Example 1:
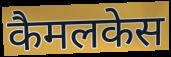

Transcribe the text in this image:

कैमलकेस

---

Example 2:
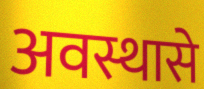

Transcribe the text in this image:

अवस्थासे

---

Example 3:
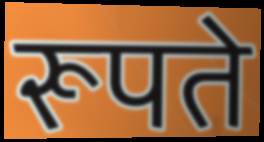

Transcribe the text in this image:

रूपते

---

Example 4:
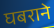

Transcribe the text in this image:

घबराने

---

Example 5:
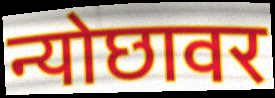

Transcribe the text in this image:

न्योछावर